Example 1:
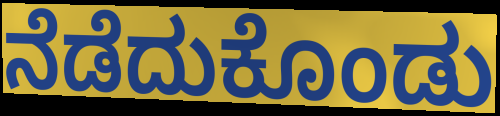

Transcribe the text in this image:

ನೆಡೆದುಕೊಂಡು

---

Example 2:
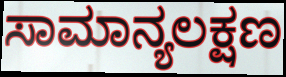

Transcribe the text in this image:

ಸಾಮಾನ್ಯಲಕ್ಷಣ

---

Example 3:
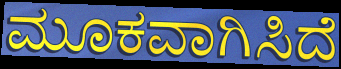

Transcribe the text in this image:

ಮೂಕವಾಗಿಸಿದೆ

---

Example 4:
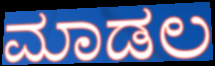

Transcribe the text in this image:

ಮಾಡಲ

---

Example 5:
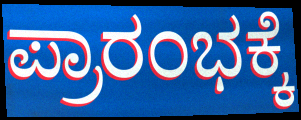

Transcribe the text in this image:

ಪ್ರಾರಂಭಕ್ಕೆ